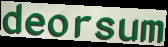
deorsum